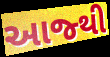
આજ્થી